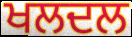
ਖਲਦਲ